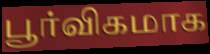
பூர்விகமாக